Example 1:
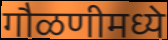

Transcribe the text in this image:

गौळणीमध्ये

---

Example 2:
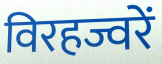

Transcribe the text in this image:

विरहज्वरें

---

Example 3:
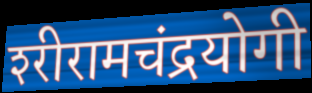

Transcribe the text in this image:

श्रीरामचंद्रयोगी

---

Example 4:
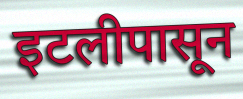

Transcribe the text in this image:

इटलीपासून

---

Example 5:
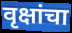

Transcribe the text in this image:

वृक्षांचा